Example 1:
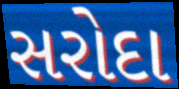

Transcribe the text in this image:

સરોદા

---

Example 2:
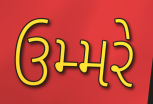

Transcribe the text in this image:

ઉમ્મરે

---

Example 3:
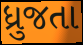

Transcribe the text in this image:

ધ્રુજતા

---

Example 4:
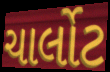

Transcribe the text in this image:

ચાર્લોટ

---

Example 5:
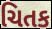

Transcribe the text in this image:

ચિતક